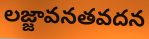
లజ్జావనతవదన